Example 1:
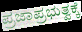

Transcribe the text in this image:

ಪ್ರಜಾಪ್ರಭುತ್ವಕ್ಕೆ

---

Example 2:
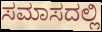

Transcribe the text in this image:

ಸಮಾಸದಲ್ಲಿ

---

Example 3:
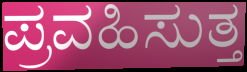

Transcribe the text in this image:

ಪ್ರವಹಿಸುತ್ತ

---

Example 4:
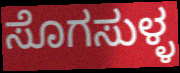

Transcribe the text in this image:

ಸೊಗಸುಳ್ಳ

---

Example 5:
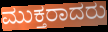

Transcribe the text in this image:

ಮುಕ್ತರಾದರು